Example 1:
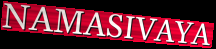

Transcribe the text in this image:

NAMASIVAYA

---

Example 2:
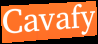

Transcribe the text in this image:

Cavafy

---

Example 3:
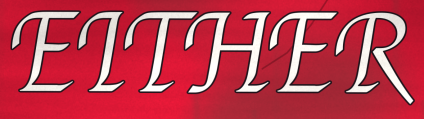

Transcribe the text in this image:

EITHER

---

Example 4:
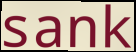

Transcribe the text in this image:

sank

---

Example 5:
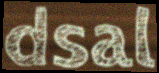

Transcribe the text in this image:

dsal